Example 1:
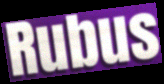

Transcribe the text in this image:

Rubus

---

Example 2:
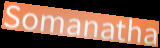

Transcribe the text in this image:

Somanatha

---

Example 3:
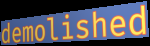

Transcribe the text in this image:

demolished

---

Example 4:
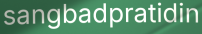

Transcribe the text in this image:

sangbadpratidin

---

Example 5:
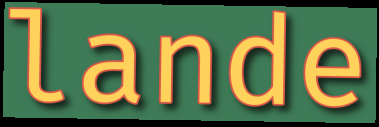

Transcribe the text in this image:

lande